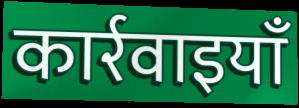
कार्रवाइयाँ